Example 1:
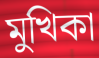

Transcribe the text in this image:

মুখিকা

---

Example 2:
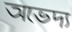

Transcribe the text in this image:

অভেদ্য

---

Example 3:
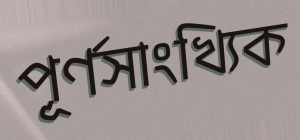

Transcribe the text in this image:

পূর্ণসাংখ্যিক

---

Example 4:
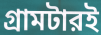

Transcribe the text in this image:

গ্রামটারই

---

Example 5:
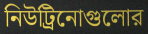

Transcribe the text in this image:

নিউট্রিনোগুলোর